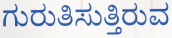
ಗುರುತಿಸುತ್ತಿರುವ